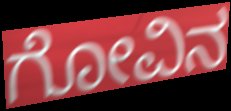
ಗೋವಿನ